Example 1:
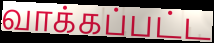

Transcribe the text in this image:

வாக்கப்பட்ட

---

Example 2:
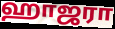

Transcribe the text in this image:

ஹாஜரா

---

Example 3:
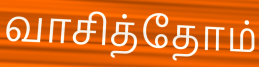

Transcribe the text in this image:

வாசித்தோம்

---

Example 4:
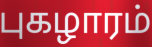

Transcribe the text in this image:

புகழாரம்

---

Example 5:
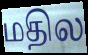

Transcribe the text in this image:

மதில